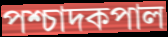
পশ্চাদকপাল